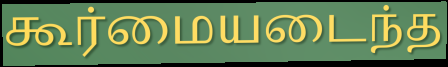
கூர்மையடைந்த